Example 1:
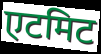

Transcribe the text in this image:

एटमिट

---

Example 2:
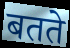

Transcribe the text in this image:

बतते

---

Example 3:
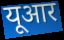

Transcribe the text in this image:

यूआर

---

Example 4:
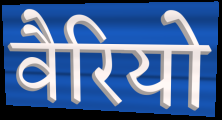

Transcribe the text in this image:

वैरियो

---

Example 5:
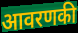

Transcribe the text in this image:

आवरणकी